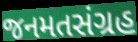
જનમતસંગ્રહ